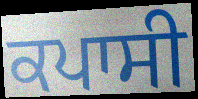
ਕਪਾਸੀ